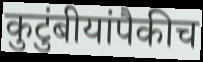
कुटुंबीयांपैकीच